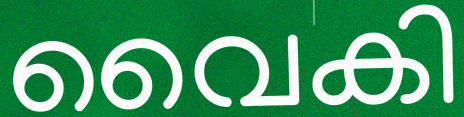
വൈകി